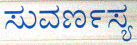
ಸುವರ್ಣಸ್ಯ